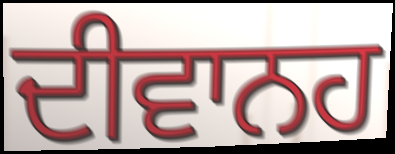
ਦੀਵਾਨਹ